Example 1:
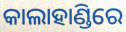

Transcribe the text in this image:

କାଲାହାଣ୍ଡିରେ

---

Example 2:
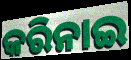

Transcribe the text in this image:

କରିନାଇ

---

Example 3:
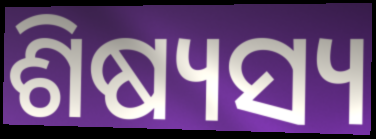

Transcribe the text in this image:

ଶିଷ୍ୟସ୍ୟ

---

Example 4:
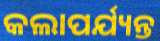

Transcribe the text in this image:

କଲାପର୍ଯ୍ୟନ୍ତ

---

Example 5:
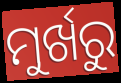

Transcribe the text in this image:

ମୁର୍ଖରୁ